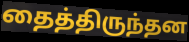
தைத்திருந்தன